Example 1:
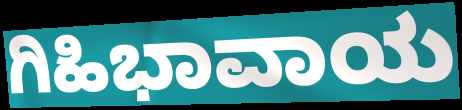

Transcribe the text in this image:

ಗಿಹಿಭಾವಾಯ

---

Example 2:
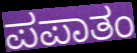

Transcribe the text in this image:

ಪಪಾತಂ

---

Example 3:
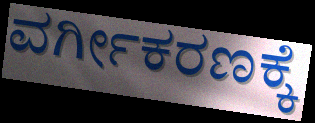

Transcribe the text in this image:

ವರ್ಗೀಕರಣಕ್ಕೆ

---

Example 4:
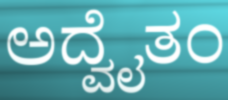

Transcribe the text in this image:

ಅದ್ವೈತಂ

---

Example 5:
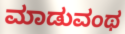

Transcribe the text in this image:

ಮಾಡುವಂಥ